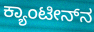
ಕ್ಯಾಂಟೀನ್‌ನ